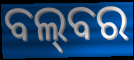
ବଲ୍‌ବର